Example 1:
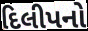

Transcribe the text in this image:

દિલીપનો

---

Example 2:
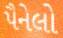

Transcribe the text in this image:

પૈનેલો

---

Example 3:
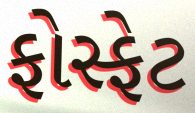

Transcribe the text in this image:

ફોસ્ફેટ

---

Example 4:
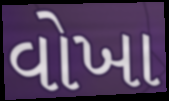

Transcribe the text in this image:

વોખા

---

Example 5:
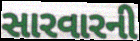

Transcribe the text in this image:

સારવારની